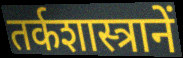
तर्कशास्त्रानें